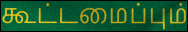
கூட்டமைப்பும்